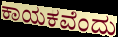
ಕಾಯಕವೆಂದು